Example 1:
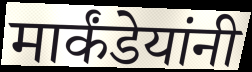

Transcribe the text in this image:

मार्कंडेयांनी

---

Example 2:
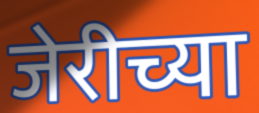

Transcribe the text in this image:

जेरीच्या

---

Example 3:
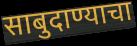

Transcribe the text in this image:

साबुदाण्याचा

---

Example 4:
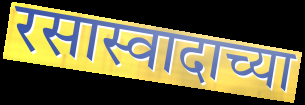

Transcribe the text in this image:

रसास्वादाच्या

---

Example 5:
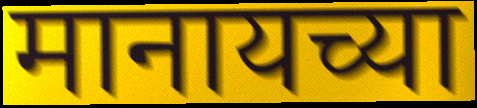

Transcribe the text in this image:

मानायच्या